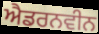
ਐਡਰਨਵੀਨ